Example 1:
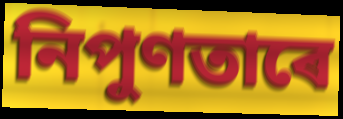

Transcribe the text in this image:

নিপুণতাৰে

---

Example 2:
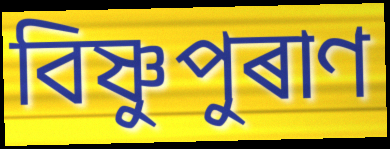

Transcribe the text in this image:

বিষ্ণুপুৰাণ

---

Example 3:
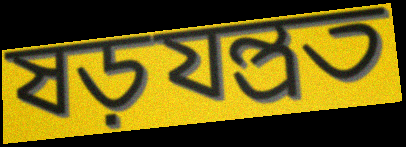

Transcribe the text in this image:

ষড়যন্ত্ৰত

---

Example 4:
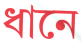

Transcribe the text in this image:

ধানে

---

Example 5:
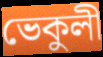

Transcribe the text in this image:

ভেকুলী